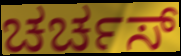
ಚರ್ಚಸ್